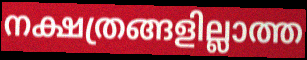
നക്ഷത്രങ്ങളില്ലാത്ത